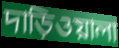
দাড়িওয়ালা